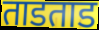
ताडताड